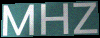
MHZ